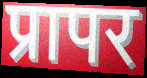
प्रापर